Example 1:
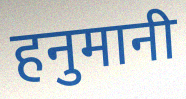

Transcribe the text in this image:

हनुमानी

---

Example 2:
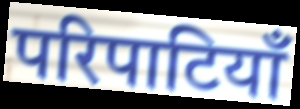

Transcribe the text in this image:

परिपाटियाँ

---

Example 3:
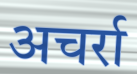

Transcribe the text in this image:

अचर्रा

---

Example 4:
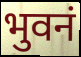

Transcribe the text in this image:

भुवनं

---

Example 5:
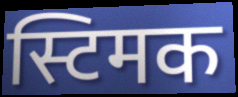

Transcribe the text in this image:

स्टिमक